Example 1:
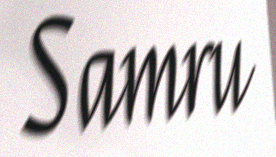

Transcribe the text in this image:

Samru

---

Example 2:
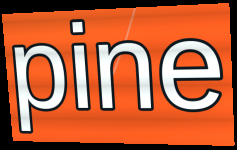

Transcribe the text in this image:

pine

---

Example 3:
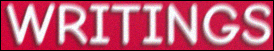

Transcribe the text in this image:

WRITINGS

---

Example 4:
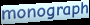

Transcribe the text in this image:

monograph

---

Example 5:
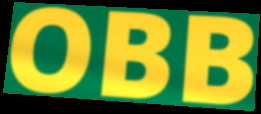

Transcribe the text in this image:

OBB